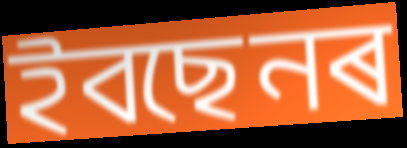
ইবছেনৰ